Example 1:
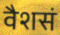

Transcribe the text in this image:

वैशसं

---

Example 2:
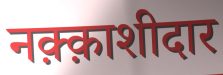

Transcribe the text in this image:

नक़्क़ाशीदार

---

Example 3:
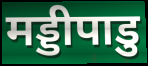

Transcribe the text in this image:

मड्डीपाडु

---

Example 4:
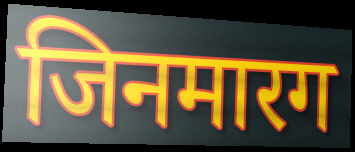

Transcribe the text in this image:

जिनमारग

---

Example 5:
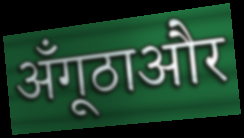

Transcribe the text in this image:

अँगूठाऔर